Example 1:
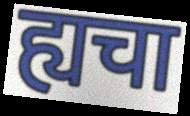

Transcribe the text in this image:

ह्यचा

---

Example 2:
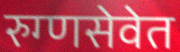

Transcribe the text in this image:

रुग्णसेवेत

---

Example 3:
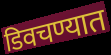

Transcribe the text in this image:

डिवचण्यात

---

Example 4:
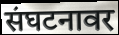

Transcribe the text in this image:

संघटनावर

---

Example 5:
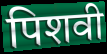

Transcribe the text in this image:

पिशवी